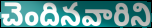
చెందినవారిని